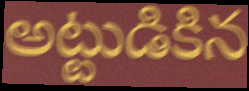
అట్టుడికిన